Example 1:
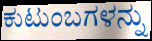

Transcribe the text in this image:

ಕುಟುಂಬಗಳನ್ನು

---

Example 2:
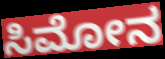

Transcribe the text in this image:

ಸಿಮೋನ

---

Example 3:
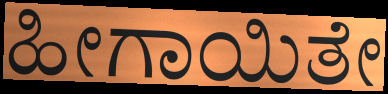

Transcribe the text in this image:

ಹೀಗಾಯಿತೇ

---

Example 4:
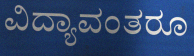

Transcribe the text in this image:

ವಿದ್ಯಾವಂತರೂ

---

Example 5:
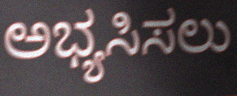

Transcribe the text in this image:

ಅಭ್ಯಸಿಸಲು